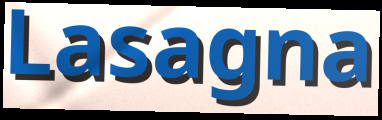
Lasagna